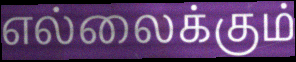
எல்லைக்கும்